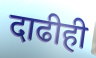
दाढीही